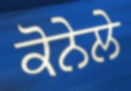
ਕੋਨੇਲੇ